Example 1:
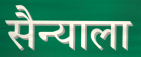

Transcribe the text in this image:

सैन्याला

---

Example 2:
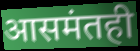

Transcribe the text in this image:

आसमंतही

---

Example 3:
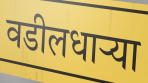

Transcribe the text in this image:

वडीलधाऱ्या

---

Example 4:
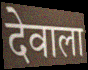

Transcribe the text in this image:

देवाला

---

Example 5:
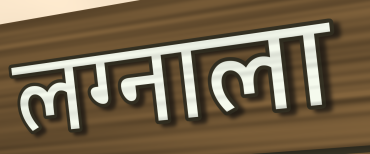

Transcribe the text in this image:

लग्नाला